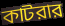
কাটরার